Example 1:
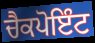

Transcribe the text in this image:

ਚੈਕਪੋਇੰਟ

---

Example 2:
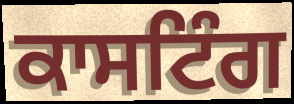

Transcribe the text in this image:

ਕਾਸਟਿੰਗ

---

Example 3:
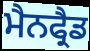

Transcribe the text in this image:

ਮੈਨਫ੍ਰੈਡ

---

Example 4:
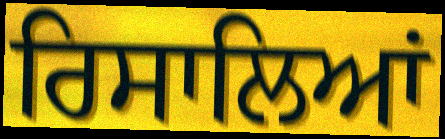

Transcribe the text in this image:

ਰਿਸਾਲਿਆਂ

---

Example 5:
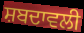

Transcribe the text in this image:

ਸ਼ਬਦਾਵਲੀ